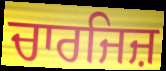
ਚਾਰਜਿਜ਼